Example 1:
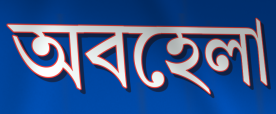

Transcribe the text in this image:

অবহেলা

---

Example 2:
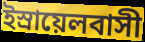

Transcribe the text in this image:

ইস্রায়েলবাসী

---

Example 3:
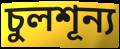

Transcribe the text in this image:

চুলশূন্য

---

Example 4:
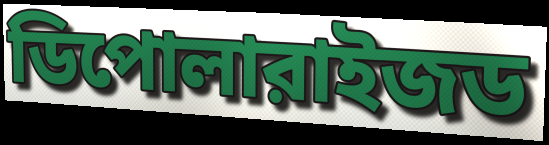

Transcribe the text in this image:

ডিপোলারাইজড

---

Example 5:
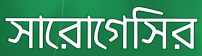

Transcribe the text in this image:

সারোগেসির